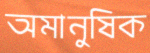
অমানুষিক